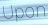
Upon